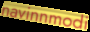
navinnmodi